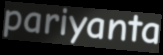
pariyanta